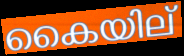
കൈയില്